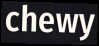
chewy